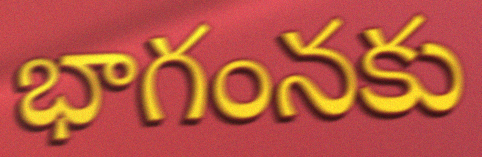
భాగంనకు